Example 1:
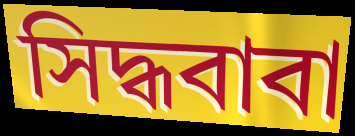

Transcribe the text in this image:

সিদ্ধবাবা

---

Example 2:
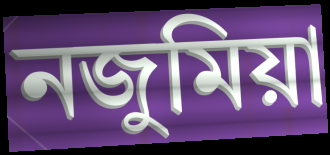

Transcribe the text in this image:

নজুমিয়া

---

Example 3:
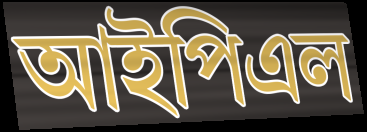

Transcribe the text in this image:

আইপিএল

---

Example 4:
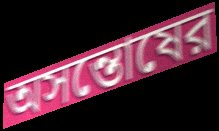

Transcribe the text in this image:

অসন্তোষের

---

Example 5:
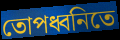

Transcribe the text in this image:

তোপধ্বনিতে